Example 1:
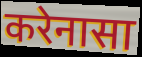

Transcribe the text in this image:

करेनासा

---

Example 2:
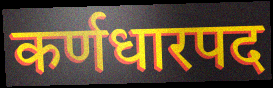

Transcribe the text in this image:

कर्णधारपद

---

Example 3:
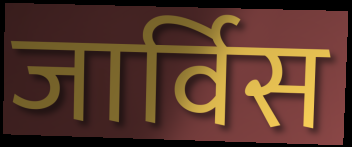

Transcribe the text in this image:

जार्विस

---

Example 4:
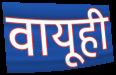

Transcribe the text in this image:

वायूही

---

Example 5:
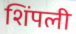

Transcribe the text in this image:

शिंपली